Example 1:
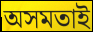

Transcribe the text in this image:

অসমতাই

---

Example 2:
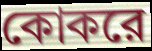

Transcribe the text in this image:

কোকরে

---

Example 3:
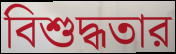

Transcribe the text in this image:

বিশুদ্ধতার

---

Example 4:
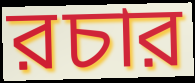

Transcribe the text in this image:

রচার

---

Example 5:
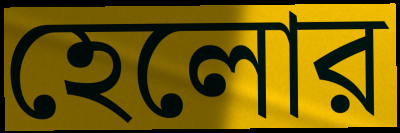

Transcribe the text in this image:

হেলোর